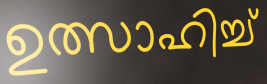
ഉത്സാഹിച്ച്